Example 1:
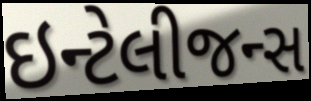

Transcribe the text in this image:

ઇન્ટેલીજન્સ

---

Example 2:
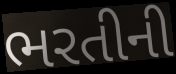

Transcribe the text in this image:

ભરતીની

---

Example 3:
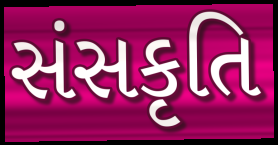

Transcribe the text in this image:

સંસકૃતિ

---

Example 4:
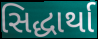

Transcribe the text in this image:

સિદ્ધાર્થા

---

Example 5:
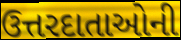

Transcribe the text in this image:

ઉત્તરદાતાઓની